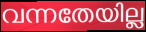
വന്നതേയില്ല